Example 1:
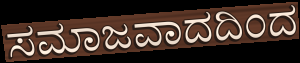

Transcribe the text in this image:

ಸಮಾಜವಾದದಿಂದ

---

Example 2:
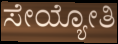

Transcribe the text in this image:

ಸೇಯ್ಯೋತಿ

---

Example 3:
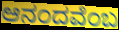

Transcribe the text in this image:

ಆನಂದವೆಂಬ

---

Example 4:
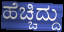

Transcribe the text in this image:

ಹೆಚ್ಚಿದ್ದು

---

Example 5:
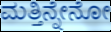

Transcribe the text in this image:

ಮತ್ತಿನ್ನೇನೋ